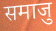
समाजु